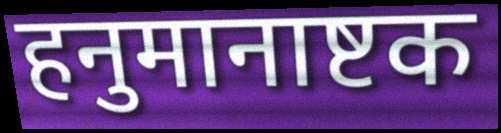
हनुमानाष्टक